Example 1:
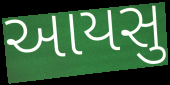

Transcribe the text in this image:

આયસુ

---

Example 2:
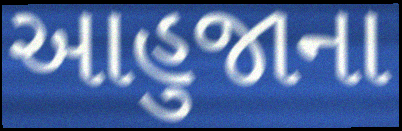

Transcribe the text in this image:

આહુજાના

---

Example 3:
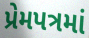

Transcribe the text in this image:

પ્રેમપત્રમાં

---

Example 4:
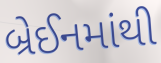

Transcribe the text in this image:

બ્રેઈનમાંથી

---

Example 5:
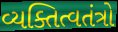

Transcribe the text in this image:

વ્યક્તિત્વતંત્રો